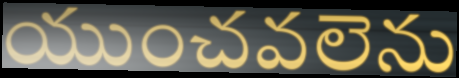
యుంచవలెను